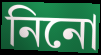
নিনো